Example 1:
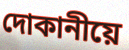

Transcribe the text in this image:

দোকানীয়ে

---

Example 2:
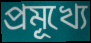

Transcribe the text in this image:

প্ৰমূখ্যে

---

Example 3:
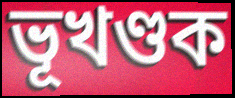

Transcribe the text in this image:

ভূখণ্ডক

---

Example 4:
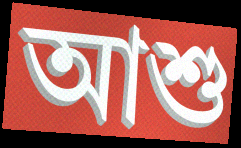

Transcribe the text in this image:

আশু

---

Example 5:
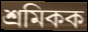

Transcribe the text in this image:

শ্ৰমিকক